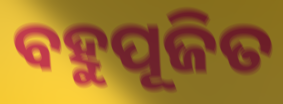
ବହୁପୂଜିତ